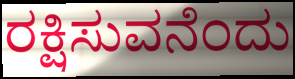
ರಕ್ಷಿಸುವನೆಂದು